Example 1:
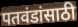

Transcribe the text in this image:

पतवंडांसाठी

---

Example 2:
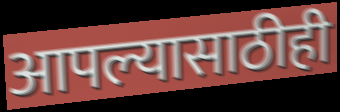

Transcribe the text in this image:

आपल्यासाठीही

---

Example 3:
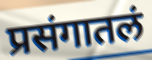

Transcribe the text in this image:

प्रसंगातलं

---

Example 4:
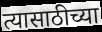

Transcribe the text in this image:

त्यासाठीच्या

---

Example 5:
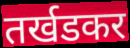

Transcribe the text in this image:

तर्खडकर